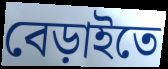
বেড়াইতে